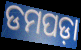
ଡମପଡ଼ା